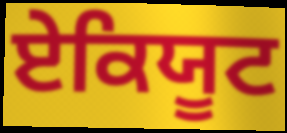
ਏਕਿਯੂਟ